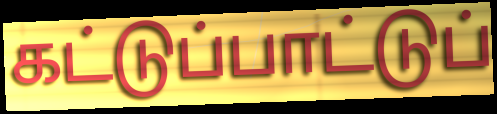
கட்டுப்பாட்டுப்